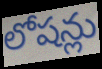
లోషన్లు